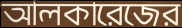
আলকারেজের